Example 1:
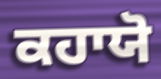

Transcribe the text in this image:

ਕਹਾਯੋ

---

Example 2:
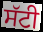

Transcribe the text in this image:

ਸੱਟੀ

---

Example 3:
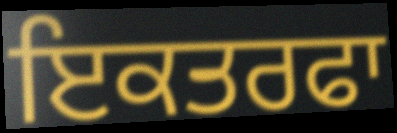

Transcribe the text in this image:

ਇਕਤਰਫਾ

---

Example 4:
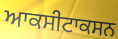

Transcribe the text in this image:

ਆਕਸੀਟਾਕਸਨ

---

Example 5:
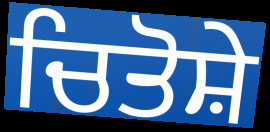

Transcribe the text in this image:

ਚਿਤੋਸ਼ੇ